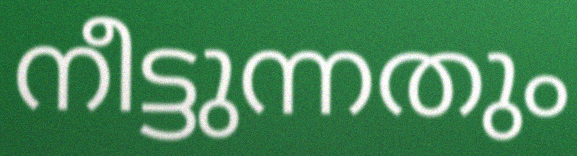
നീട്ടുന്നതും